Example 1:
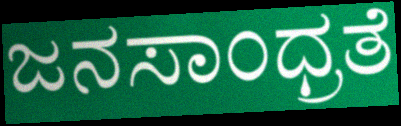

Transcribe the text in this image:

ಜನಸಾಂಧ್ರತೆ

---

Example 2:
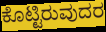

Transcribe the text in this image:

ಕೊಟ್ಟಿರುವುದರ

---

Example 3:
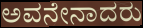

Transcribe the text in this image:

ಅವನೇನಾದರು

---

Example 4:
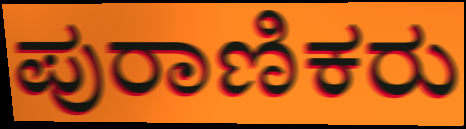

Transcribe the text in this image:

ಪುರಾಣಿಕರು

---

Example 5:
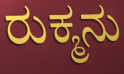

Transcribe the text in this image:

ರುಕ್ಮನು